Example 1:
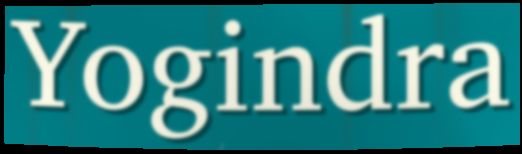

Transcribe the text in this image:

Yogindra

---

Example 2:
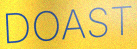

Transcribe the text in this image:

DOAST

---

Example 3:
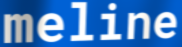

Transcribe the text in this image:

meline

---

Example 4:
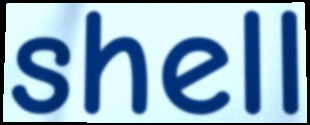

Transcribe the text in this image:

shell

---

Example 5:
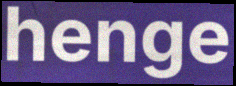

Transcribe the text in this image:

henge